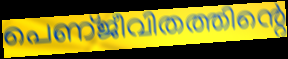
പെണ്ജീവിതത്തിന്റെ